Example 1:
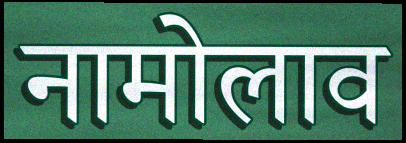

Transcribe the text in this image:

नामोलाव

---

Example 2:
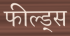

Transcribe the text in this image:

फील्ड्स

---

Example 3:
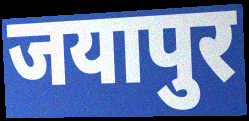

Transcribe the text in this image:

जयापुर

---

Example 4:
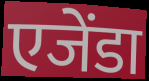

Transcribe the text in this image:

एजेंडा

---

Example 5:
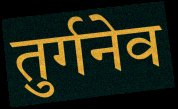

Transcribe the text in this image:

तुर्गनेव